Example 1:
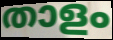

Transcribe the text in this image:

താളം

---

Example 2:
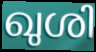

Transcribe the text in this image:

ഖുശി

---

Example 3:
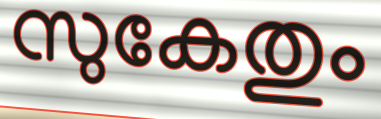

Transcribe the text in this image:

സുകേതും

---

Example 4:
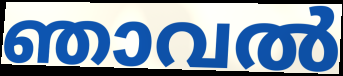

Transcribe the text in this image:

ഞാവൽ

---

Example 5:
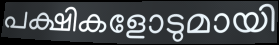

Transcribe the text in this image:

പക്ഷികളോടുമായി